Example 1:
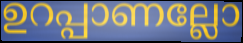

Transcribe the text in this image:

ഉറപ്പാണല്ലോ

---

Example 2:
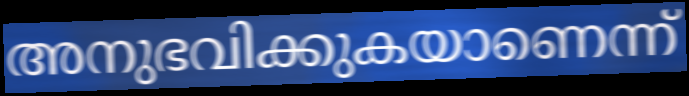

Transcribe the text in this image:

അനുഭവിക്കുകയാണെന്ന്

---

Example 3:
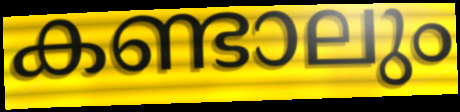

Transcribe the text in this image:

കണ്ടാലും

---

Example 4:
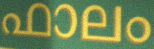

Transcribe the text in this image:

ഫാലം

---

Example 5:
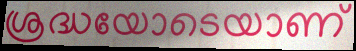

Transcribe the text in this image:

ശ്രദ്ധയോടെയാണ്